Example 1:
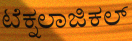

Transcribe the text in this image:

ಟೆಕ್ನಲಾಜಿಕಲ್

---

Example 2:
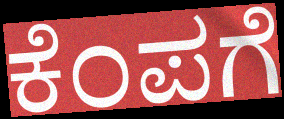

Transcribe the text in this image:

ಕೆಂಪಗೆ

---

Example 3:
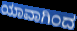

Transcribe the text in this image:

ಯಾವಾಗಿಂದ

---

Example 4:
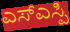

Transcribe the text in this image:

ಎಸ್ಎಸ್ಪಿ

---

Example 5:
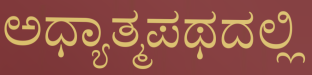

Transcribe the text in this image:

ಅಧ್ಯಾತ್ಮಪಥದಲ್ಲಿ